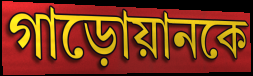
গাড়োয়ানকে